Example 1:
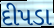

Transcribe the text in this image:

દીપડા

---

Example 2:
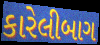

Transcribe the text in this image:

કારેલીબાગ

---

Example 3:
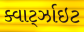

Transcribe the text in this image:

ક્વાર્ટ્ઝાઇટ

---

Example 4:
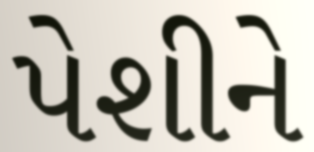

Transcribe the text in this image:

પેશીને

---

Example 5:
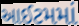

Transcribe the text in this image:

આઈટમમાં